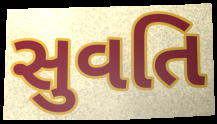
સુવતિ